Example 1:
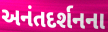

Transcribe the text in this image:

અનંતદર્શનના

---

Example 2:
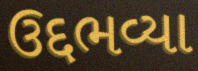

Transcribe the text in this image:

ઉદ્દભવ્યા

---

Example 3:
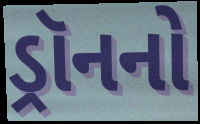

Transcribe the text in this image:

ડ્રૉનનો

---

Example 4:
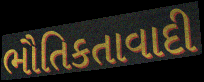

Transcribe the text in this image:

ભૌતિકતાવાદી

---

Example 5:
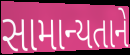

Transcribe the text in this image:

સામાન્યતાને